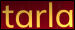
tarla